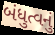
બંધુત્વનું